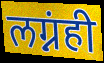
लग्नंही